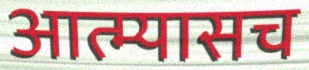
आत्म्यासच